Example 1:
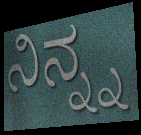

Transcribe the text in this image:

ನಿನ್ನ್ನ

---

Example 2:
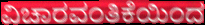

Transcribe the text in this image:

ವಿಚಾರವಂತಿಕೆಯಿಂದ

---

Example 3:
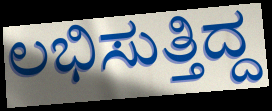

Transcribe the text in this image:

ಲಭಿಸುತ್ತಿದ್ದ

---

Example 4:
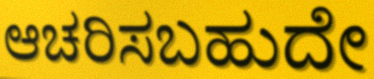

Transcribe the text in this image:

ಆಚರಿಸಬಹುದೇ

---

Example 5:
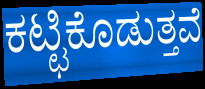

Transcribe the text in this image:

ಕಟ್ಟಿಕೊಡುತ್ತವೆ